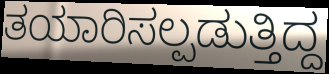
ತಯಾರಿಸಲ್ಪಡುತ್ತಿದ್ದ